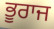
ਭੂਰਾਜ